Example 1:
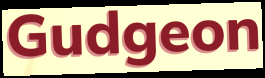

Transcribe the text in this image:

Gudgeon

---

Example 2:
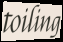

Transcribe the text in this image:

toiling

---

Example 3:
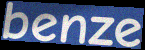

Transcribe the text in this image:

benze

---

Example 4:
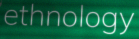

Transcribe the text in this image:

ethnology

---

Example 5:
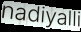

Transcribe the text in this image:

nadiyalli